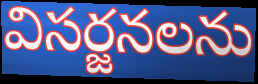
విసర్జనలను